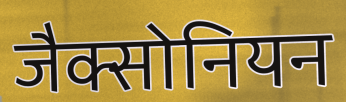
जैक्सोनियन